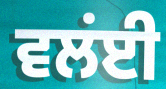
ਵਲਂਈ